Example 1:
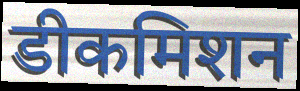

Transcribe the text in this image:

डीकमिशन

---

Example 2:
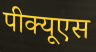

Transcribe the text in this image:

पीक्यूएस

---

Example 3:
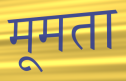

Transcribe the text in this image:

मूमता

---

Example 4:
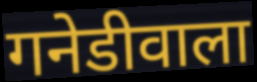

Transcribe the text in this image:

गनेडीवाला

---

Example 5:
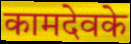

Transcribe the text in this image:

कामदेवके